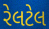
રેલટેલ